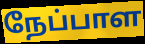
நேப்பாள